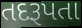
તદરૂપતા